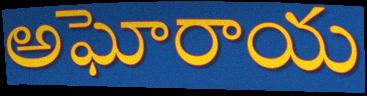
అఘోరాయ